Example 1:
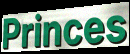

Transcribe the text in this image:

Princes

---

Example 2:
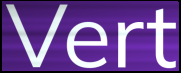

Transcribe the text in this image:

Vert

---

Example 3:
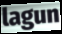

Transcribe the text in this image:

lagun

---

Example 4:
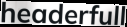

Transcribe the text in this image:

headerfull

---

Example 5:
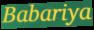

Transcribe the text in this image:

Babariya